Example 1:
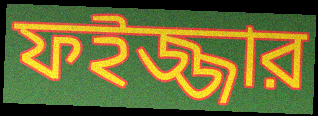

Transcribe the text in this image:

ফইজ্জার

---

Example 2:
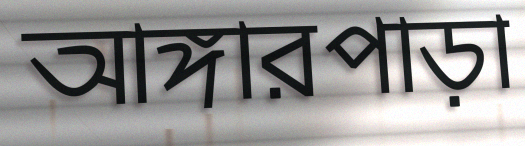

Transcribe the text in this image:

আঙ্গারপাড়া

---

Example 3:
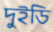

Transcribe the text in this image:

দুইডি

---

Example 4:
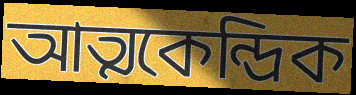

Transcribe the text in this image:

আত্মকেন্দ্রিক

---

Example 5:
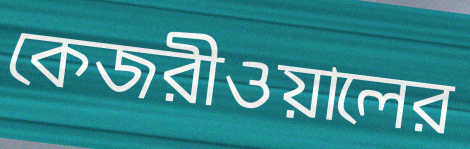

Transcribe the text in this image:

কেজরীওয়ালের